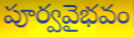
పూర్వవైభవం